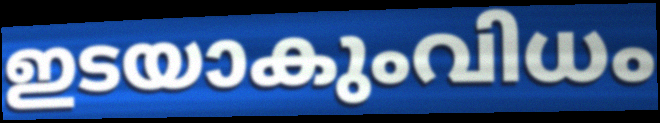
ഇടയാകുംവിധം